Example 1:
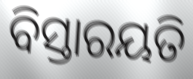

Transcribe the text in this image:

ବିସ୍ତାରୟତି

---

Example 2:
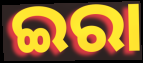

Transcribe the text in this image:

ଇରା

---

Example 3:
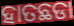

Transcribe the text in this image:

ହାତଛଡା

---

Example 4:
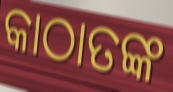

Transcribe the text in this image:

କାଠାତଙ୍କ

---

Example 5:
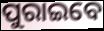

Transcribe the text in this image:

ପୁରାଇବେ